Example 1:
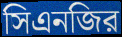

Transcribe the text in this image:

সিএনজির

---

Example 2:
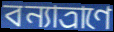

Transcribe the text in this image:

বন্যাত্রাণে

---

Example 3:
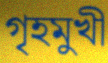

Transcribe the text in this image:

গৃহমুখী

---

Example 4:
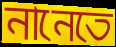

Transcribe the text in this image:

নানেতে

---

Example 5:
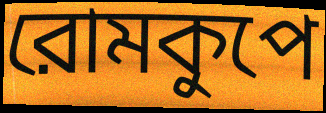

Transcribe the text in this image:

রোমকুপে